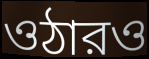
ওঠারও